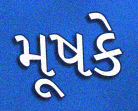
મૂષકે